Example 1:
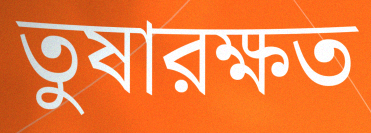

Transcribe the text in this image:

তুষারক্ষত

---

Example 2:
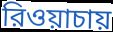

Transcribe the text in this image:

রিওয়াচায়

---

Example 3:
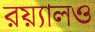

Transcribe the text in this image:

রয়্যালও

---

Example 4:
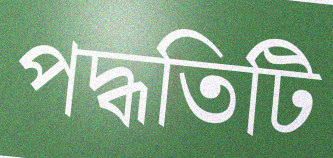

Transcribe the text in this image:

পদ্ধতিটি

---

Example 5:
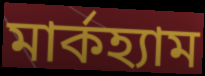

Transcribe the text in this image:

মার্কহ্যাম